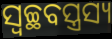
ସ୍ଵଚ୍ଛବସ୍ତ୍ରସ୍ୟ